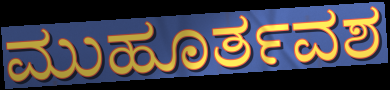
ಮುಹೂರ್ತವಶ